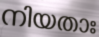
നിയതാഃ